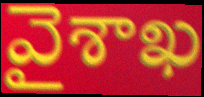
వైశాఖ